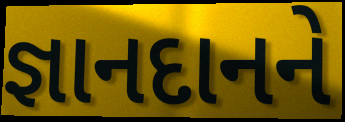
જ્ઞાનદાનને